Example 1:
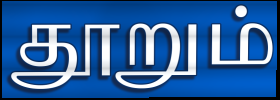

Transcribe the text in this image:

தூறும்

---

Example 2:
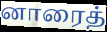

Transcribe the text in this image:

னாரைத்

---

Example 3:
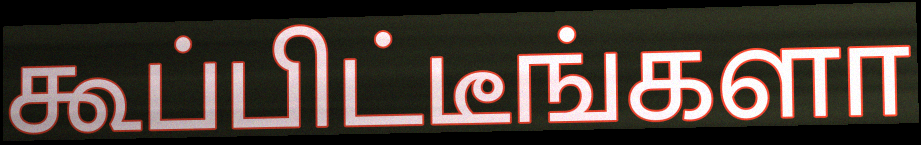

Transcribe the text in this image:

கூப்பிட்டீங்களா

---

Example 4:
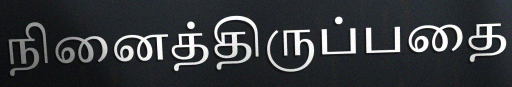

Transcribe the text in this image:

நினைத்திருப்பதை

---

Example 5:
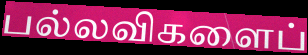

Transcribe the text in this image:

பல்லவிகளைப்